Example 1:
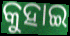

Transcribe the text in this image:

କୁହାଇ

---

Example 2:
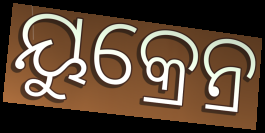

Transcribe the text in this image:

ୟୁକ୍ରେନ୍ର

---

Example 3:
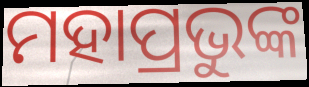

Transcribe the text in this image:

ମହାପ୍ରଭୁଙ୍କ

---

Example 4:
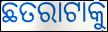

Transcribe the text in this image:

ଛତରାଟାକୁ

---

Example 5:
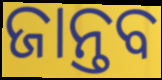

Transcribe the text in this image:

ଜାନ୍ତବ